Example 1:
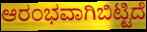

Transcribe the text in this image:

ಆರಂಭವಾಗಿಬಿಟ್ಟಿದೆ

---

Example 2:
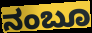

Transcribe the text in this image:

ನಂಬೂ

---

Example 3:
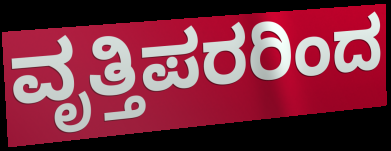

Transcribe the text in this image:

ವೃತ್ತಿಪರರಿಂದ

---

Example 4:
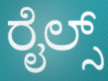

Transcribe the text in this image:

ರೈಲ್ಸ್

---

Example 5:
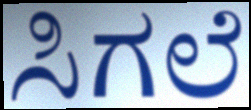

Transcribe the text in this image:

ಸಿಗಲೆ